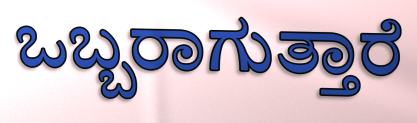
ಒಬ್ಬರಾಗುತ್ತಾರೆ